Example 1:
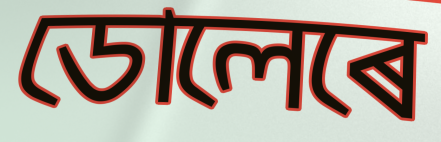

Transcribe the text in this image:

ডোলেৰে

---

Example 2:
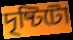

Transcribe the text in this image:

দৃষ্টিটো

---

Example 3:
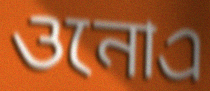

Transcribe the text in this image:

ওনোএ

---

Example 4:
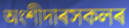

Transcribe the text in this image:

অংশীদাৰসকলৰ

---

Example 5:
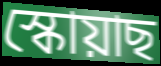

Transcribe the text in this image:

স্কোয়াছ